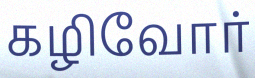
கழிவோர்